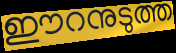
ഈറനുടുത്ത